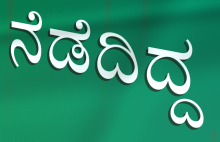
ನೆಡೆದಿದ್ದ